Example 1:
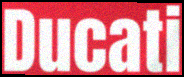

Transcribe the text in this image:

Ducati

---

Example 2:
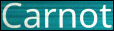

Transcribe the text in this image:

Carnot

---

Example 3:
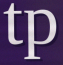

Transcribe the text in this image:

tp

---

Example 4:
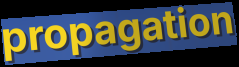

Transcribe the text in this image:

propagation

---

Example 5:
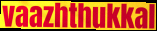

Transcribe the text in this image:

vaazhthukkal